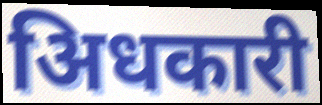
अिधकारी